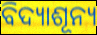
ବିଦ୍ୟାଶୂନ୍ୟ